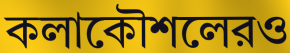
কলাকৌশলেরও